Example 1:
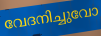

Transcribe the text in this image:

വേദനിച്ചുവോ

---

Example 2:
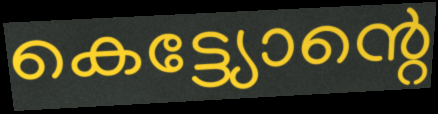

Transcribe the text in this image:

കെട്ട്യോന്റെ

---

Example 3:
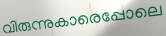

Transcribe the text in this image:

വിരുന്നുകാരെപ്പോലെ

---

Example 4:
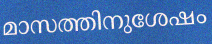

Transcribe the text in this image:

മാസത്തിനുശേഷം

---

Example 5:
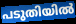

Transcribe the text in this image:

പടുതിയിൽ